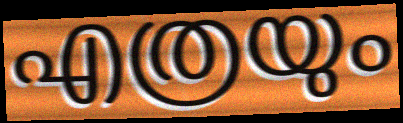
എത്രയും